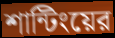
শান্টিংয়ের